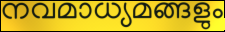
നവമാധ്യമങ്ങളും